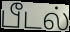
பீடல்